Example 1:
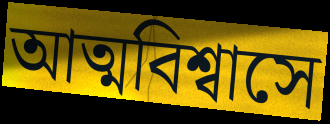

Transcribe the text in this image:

আত্মবিশ্বাসে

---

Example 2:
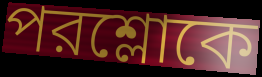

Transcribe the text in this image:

পরশ্লোকে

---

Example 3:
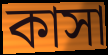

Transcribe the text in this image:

কাসা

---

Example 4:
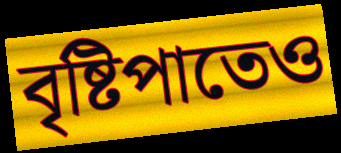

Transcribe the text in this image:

বৃষ্টিপাতেও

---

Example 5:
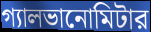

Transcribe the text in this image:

গ্যালভানোমিটার